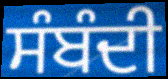
ਸੰਬੰਦੀ